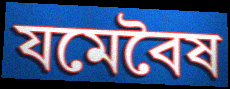
যমেবৈষ